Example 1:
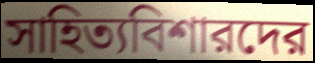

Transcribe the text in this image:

সাহিত্যবিশারদের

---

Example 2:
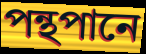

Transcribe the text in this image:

পন্থপানে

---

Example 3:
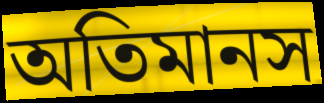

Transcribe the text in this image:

অতিমানস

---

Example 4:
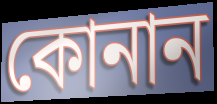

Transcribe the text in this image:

কোনান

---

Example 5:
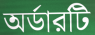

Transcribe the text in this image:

অর্ডারটি